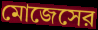
মোজেসের